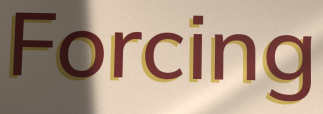
Forcing